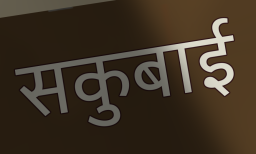
सकुबाई